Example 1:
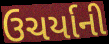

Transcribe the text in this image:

ઉચર્યાની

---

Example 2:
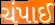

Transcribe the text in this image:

ચંપાઈ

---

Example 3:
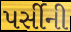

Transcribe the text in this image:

પર્સીની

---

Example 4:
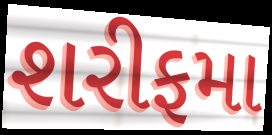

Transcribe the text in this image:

શરીફમા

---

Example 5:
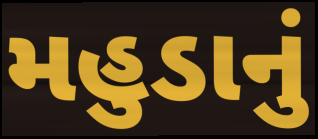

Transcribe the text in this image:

મહુડાનું